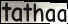
tathaa